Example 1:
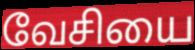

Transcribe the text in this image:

வேசியை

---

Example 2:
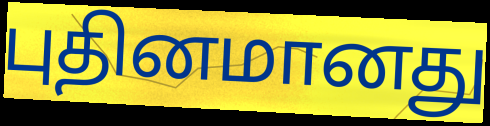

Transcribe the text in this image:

புதினமானது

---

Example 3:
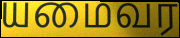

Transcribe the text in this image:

யமைவர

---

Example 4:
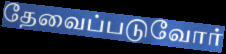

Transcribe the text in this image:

தேவைப்படுவோர்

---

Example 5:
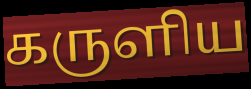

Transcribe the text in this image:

கருளிய